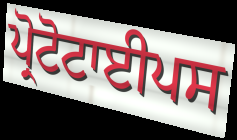
ਪ੍ਰੋਟੋਟਾਈਪਸ